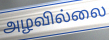
அழவில்லை